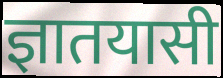
ज्ञातयासी